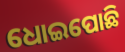
ଧୋଇପୋଛି